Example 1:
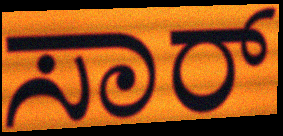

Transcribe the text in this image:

ಸಾರ್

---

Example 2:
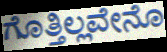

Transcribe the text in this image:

ಗೊತ್ತಿಲ್ಲವೇನೊ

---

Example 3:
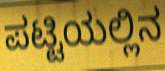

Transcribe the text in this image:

ಪಟ್ಟಿಯಲ್ಲಿನ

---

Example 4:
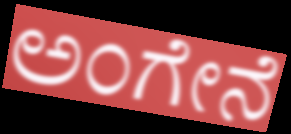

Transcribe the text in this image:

ಅಂಗೇನೆ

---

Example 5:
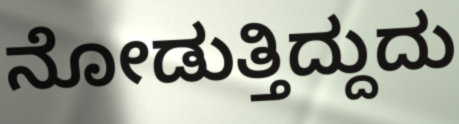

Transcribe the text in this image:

ನೋಡುತ್ತಿದ್ದುದು